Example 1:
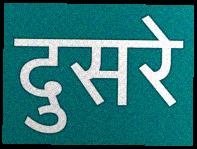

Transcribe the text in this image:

दुसरे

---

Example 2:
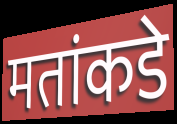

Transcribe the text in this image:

मतांकडे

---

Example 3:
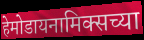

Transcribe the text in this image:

हेमोडायनामिक्सच्या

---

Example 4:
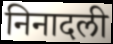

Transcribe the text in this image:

निनादली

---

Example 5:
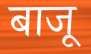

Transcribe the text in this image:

बाजू